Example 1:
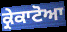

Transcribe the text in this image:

ਕ੍ਰੇਕਾਟੋਆ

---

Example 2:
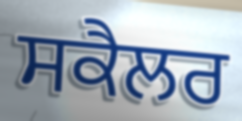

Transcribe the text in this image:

ਸਕੈਲਰ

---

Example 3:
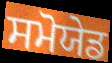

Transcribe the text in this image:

ਸਮੋਯੇਡ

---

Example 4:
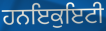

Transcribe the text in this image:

ਹਨਇਕੁਇਟੀ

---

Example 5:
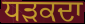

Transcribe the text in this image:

ਧੜਕਦਾ